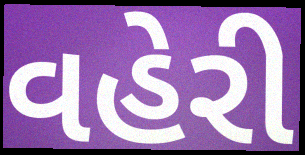
વહેરી